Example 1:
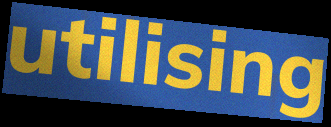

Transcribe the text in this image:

utilising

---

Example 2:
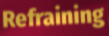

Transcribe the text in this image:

Refraining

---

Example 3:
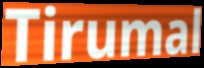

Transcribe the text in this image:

Tirumal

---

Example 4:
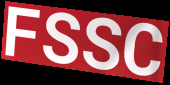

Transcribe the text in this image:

FSSC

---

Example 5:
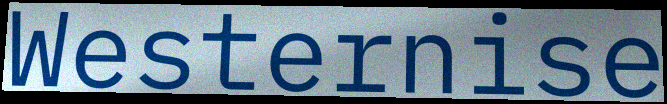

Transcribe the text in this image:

Westernise